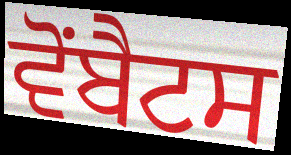
ਵੋਂਬੈਟਸ